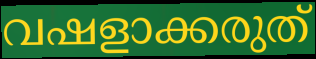
വഷളാക്കരുത്